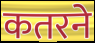
कतरने